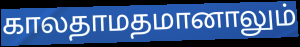
காலதாமதமானாலும்